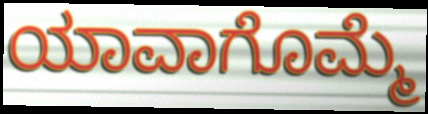
ಯಾವಾಗೊಮ್ಮೆ